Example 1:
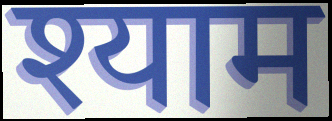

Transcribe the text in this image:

श्‍याम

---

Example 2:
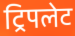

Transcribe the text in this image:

ट्रिपलेट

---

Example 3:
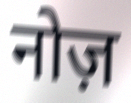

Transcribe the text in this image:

नोज़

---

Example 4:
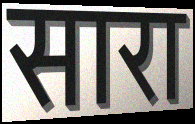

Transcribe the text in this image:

सारा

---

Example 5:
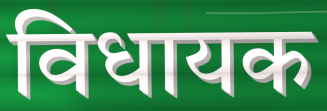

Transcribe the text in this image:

विधायक